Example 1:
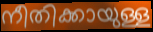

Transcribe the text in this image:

നീതിക്കായുള്ള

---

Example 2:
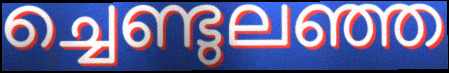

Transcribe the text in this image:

ച്ചെണ്ടുലഞ്ഞ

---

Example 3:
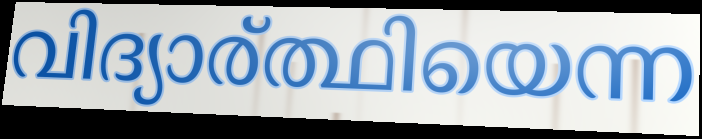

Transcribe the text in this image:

വിദ്യാര്ത്ഥിയെന്ന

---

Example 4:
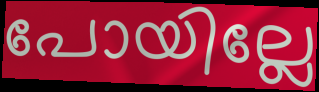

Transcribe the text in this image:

പോയില്ലേ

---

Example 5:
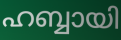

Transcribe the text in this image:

ഹബ്ബായി